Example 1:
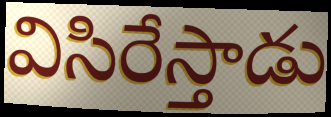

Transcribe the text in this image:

విసిరేస్తాడు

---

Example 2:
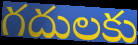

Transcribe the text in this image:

గదులకు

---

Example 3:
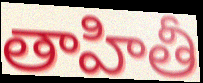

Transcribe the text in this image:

తాహితీ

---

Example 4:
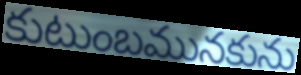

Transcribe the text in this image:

కుటుంబమునకును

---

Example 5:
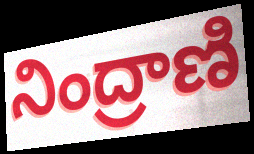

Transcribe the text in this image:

నింద్రాణి